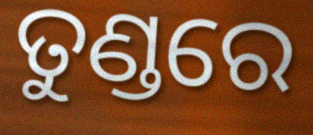
ତୁଣ୍ଡରେ